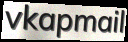
vkapmail